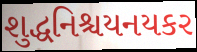
શુદ્ધનિશ્ચયનયકર